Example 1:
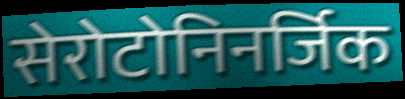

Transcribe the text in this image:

सेरोटोनिनर्जिक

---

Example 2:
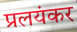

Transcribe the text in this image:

प्रलयंकर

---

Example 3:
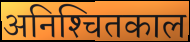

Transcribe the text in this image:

अनिश्‍चितकाल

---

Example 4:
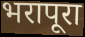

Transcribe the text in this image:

भरापूरा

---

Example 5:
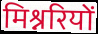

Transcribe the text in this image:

मिश्नरियों